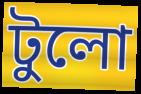
টুলো